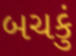
બચકું